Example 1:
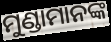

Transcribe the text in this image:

ମୁଣ୍ଡାମାନଙ୍କ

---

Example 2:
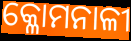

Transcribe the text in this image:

କ୍ଳୋମନାଳୀ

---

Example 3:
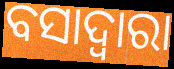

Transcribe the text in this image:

ବସାଦ୍ୱାରା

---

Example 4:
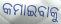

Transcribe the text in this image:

କମାଇବାକୁ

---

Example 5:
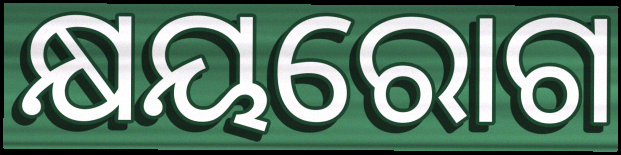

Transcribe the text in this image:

କ୍ଷୟରୋଗ